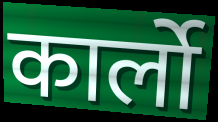
कार्लो